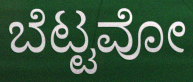
ಬೆಟ್ಟವೋ